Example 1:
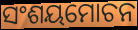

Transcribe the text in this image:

ସଂଶୟମୋଚନ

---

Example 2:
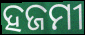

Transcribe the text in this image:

ହଜମୀ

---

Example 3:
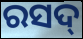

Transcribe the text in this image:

ରସଦ୍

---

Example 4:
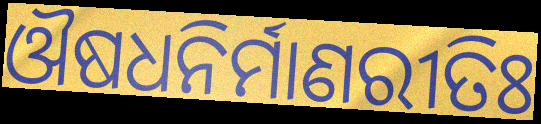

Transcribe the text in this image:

ଔଷଧନିର୍ମାଣରୀତିଃ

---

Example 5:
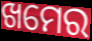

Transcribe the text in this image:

ଖମେର